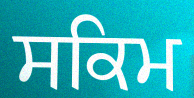
ਸਕਿਮ